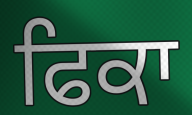
ਫਿਕਾ